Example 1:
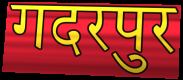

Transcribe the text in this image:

गदरपुर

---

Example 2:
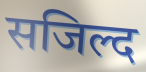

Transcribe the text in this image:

सजिल्द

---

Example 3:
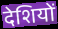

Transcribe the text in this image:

देशियों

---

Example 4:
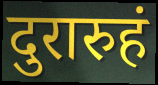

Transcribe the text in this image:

दुरारुहं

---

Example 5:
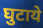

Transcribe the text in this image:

घुटाये